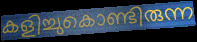
കളിച്ചുകൊണ്ടിരുന്ന